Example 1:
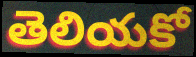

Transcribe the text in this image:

తెలియకో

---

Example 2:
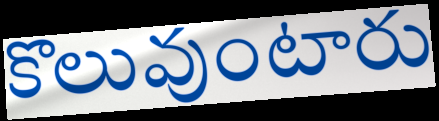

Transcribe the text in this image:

కొలువుంటారు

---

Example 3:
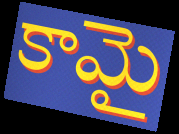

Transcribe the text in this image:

కామై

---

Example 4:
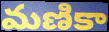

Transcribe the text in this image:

మణికా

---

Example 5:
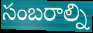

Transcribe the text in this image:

సంబరాల్ని